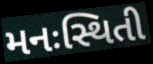
મનઃસ્થિતી